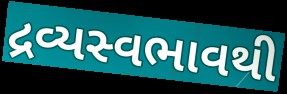
દ્રવ્યસ્વભાવથી